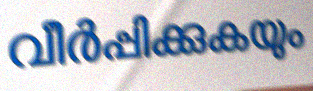
വീർപ്പിക്കുകയും